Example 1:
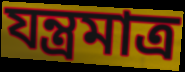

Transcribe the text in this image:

যন্ত্রমাত্র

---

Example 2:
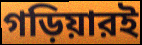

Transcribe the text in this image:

গড়িয়ারই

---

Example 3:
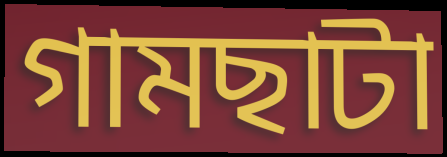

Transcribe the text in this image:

গামছাটা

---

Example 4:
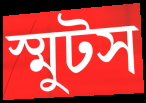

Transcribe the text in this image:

স্মুটস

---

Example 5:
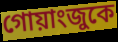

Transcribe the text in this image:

গোয়াংজুকে